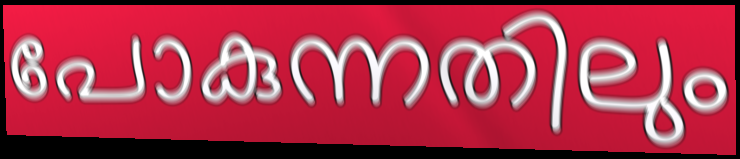
പോകുന്നതിലും